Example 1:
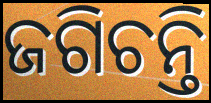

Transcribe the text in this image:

ଜଗିଚନ୍ତି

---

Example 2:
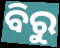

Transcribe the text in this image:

ବିରୁ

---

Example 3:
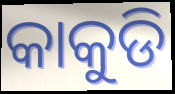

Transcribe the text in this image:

କାକୁଡି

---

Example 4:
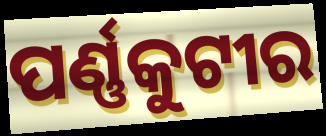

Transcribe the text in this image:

ପର୍ଣ୍ଣକୁଟୀର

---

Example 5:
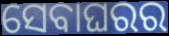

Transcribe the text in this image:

ସେବାଘରର